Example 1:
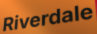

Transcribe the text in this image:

Riverdale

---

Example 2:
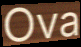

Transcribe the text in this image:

Ova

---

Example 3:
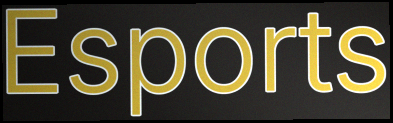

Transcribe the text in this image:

Esports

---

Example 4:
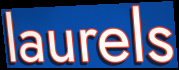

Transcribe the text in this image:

laurels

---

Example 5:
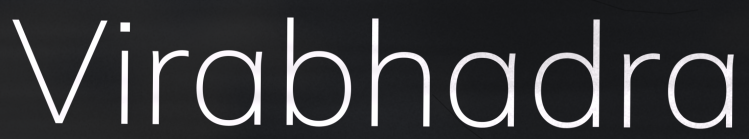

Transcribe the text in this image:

Virabhadra